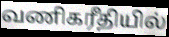
வணிகரீதியில்